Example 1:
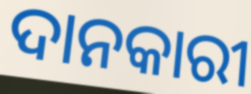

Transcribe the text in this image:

ଦାନକାରୀ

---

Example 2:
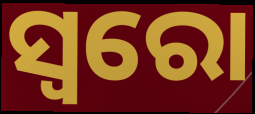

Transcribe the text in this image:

ସ୍ୱରୋ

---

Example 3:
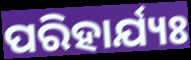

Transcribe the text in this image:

ପରିହାର୍ଯ୍ୟଃ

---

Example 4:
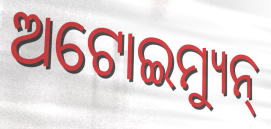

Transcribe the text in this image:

ଅଟୋଇମ୍ୟୁନ୍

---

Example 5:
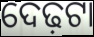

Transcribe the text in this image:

ଦେଢ଼ଟା